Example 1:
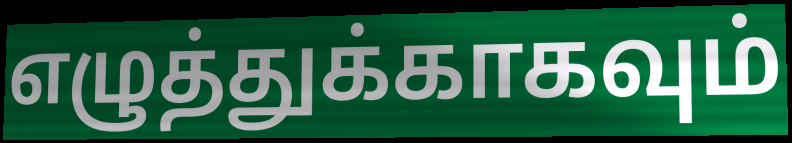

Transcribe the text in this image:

எழுத்துக்காகவும்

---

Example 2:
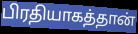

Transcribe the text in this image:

பிரதியாகத்தான்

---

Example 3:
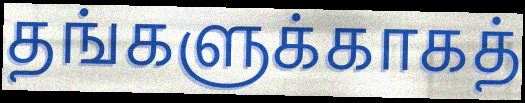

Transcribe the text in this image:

தங்களுக்காகத்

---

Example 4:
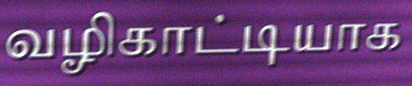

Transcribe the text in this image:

வழிகாட்டியாக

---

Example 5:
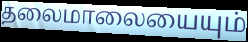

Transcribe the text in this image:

தலைமாலையையும்